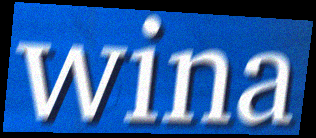
wina